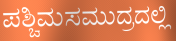
ಪಶ್ಚಿಮಸಮುದ್ರದಲ್ಲಿ